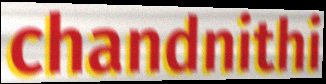
chandnithi